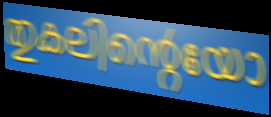
തുകലിന്റെയോ